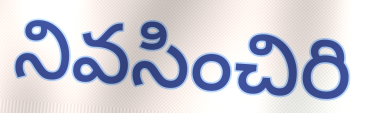
నివసించిరి